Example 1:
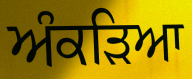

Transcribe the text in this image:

ਅੰਕੜਿਆ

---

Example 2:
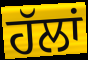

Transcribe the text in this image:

ਹੱਲਾਂ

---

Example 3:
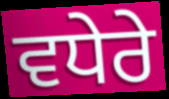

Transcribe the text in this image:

ਵਧੇਰੇ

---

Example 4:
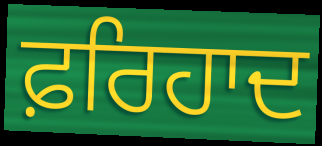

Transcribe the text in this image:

ਫ਼ਰਿਹਾਦ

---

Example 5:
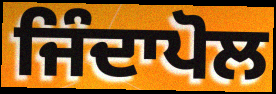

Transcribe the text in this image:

ਜਿੰਦਾਪੋਲ